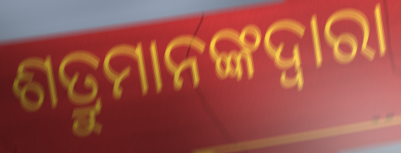
ଶତ୍ରୁମାନଙ୍କଦ୍ଵାରା